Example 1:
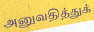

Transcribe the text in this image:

அனுவதித்துக்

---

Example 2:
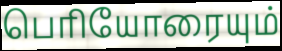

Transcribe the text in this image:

பெரியோரையும்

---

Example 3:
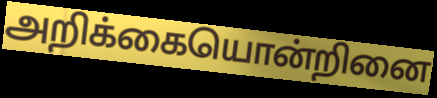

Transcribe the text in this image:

அறிக்கையொன்றினை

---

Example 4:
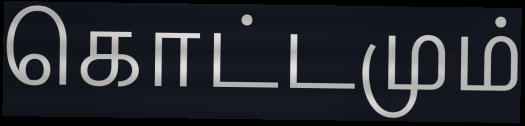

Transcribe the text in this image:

கொட்டமும்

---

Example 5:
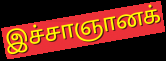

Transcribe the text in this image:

இச்சாஞானக்